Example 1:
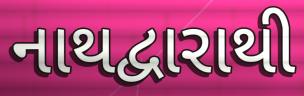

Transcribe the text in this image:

નાથદ્વારાથી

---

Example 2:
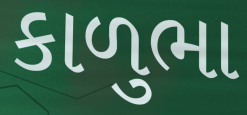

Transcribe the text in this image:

કાળુભા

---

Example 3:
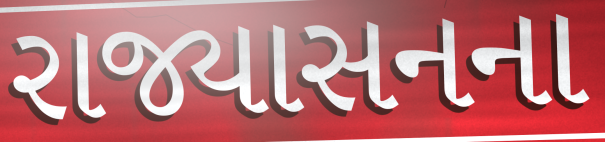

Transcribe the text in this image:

રાજ્યાસનના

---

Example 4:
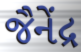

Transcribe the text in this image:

જૈનેંદ્ર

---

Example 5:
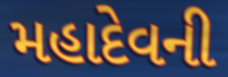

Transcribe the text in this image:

મહાદેવની